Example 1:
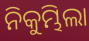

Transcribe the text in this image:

ନିକୁମ୍ଭିଲା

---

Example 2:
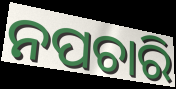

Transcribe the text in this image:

ନପଚାରି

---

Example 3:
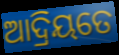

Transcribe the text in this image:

ଆଦ୍ରିୟତେ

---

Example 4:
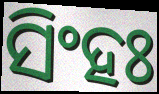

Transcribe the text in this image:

ସିଂହଃ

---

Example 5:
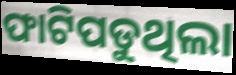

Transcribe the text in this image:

ଫାଟିପଡୁଥିଲା